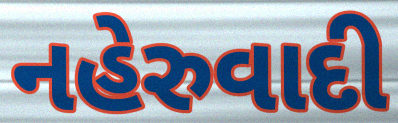
નહેરુવાદી